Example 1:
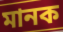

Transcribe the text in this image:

মানক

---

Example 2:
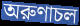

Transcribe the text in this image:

অরুণাচল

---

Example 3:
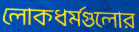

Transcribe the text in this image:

লোকধর্মগুলোর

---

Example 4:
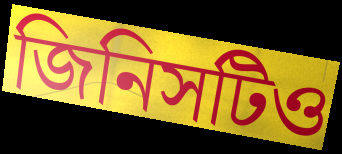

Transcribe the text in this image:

জিনিসটিও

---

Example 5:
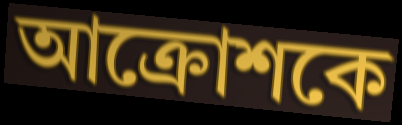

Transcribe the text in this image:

আক্রোশকে